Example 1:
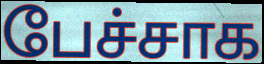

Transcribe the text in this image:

பேச்சாக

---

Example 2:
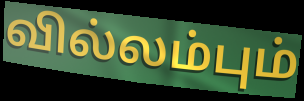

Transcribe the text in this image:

வில்லம்பும்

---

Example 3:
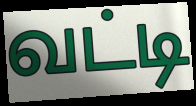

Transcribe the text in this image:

வட்டி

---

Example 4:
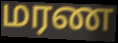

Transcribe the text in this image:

மரண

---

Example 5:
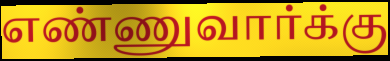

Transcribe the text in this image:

எண்ணுவார்க்கு